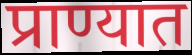
प्राण्यात